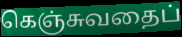
கெஞ்சுவதைப்